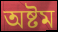
অষ্টম